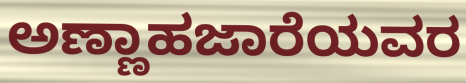
ಅಣ್ಣಾಹಜಾರೆಯವರ